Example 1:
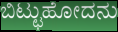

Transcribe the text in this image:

ಬಿಟ್ಟುಹೋದನು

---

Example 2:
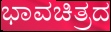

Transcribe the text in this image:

ಭಾವಚಿತ್ರದ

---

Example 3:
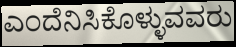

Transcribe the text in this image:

ಎಂದೆನಿಸಿಕೊಳ್ಳುವವರು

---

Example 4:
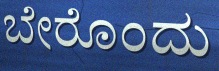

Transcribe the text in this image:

ಬೇರೊಂದು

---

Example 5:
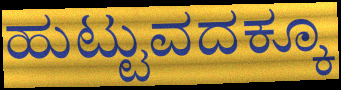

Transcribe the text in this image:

ಹುಟ್ಟುವದಕ್ಕೂ